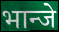
भान्जे